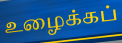
உழைக்கப்